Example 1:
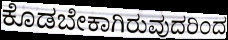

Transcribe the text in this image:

ಕೊಡಬೇಕಾಗಿರುವುದರಿಂದ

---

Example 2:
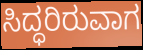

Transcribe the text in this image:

ಸಿದ್ಧರಿರುವಾಗ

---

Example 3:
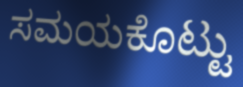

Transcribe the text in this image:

ಸಮಯಕೊಟ್ಟು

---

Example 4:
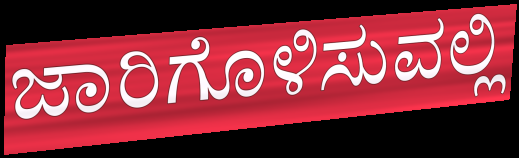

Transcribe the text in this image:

ಜಾರಿಗೊಳಿಸುವಲ್ಲಿ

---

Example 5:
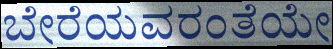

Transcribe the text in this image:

ಬೇರೆಯವರಂತೆಯೇ